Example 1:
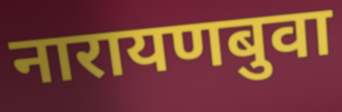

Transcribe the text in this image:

नारायणबुवा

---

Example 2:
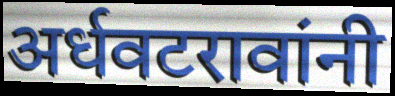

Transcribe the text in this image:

अर्धवटरावांनी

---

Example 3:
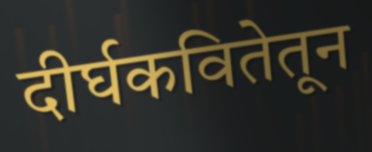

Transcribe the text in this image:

दीर्घकवितेतून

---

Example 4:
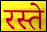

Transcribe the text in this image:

रस्ते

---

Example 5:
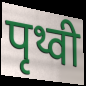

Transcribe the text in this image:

पृथ्वी